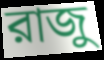
রাজু